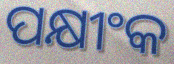
ପକ୍ଷୀଂକ